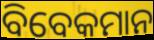
ବିବେକମାନ